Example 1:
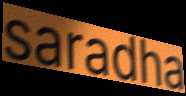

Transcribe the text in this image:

saradha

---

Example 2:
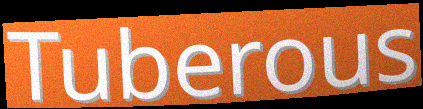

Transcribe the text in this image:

Tuberous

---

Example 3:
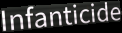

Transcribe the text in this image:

Infanticide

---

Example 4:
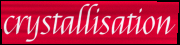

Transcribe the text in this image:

crystallisation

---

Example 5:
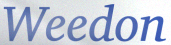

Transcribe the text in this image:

Weedon